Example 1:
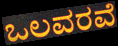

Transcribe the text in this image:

ಒಲವರವೆ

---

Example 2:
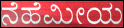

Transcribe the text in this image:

ನೆಹೆಮೀಯ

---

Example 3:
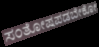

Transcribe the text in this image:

ಸಂತೋಷಪಡಬೇಕೋ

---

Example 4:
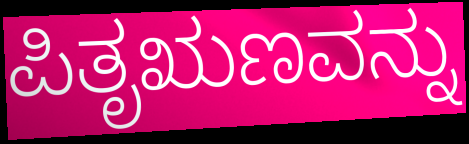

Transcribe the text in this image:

ಪಿತೃಋಣವನ್ನು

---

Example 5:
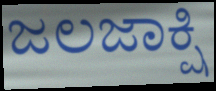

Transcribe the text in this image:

ಜಲಜಾಕ್ಷಿ